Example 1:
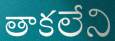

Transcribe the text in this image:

తాకలేని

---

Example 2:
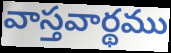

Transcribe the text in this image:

వాస్తవార్థము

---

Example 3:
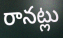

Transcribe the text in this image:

రానట్లు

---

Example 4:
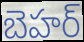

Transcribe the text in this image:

బెహర్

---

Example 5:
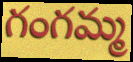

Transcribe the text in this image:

గంగమ్మ